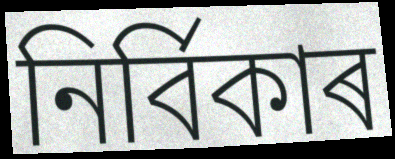
নিৰ্বিকাৰ